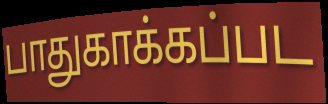
பாதுகாக்கப்பட